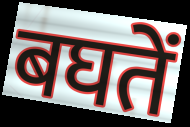
बघतें